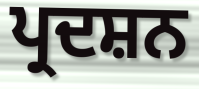
ਪ੍ਰਦਸ਼ਨ